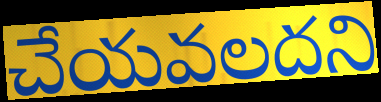
చేయవలదని